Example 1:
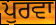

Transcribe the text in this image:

ਪੁਰਵਾ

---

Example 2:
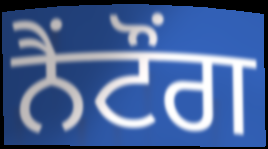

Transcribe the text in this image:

ਨੈਂਟੌਂਗ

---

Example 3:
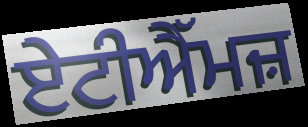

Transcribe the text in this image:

ਏਟੀਐੱਮਜ਼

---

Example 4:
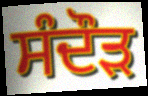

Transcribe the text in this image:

ਸੰਦੌੜ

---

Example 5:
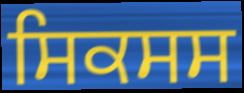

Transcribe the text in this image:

ਸਿਕਸਸ